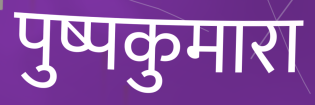
पुष्पकुमारा